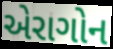
એરાગોન